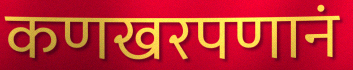
कणखरपणानं